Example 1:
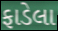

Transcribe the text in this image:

ફાડેલા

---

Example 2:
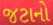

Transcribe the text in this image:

જટાનો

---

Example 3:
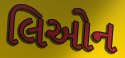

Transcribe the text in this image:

લિઓન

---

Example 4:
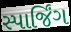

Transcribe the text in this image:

સ્પાર્જિંગ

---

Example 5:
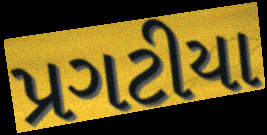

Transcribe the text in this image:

પ્રગટીયા